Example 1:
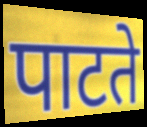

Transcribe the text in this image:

पाटते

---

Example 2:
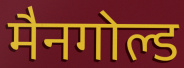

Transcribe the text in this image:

मैनगोल्ड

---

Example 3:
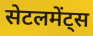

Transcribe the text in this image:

सेटलमेंट्स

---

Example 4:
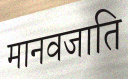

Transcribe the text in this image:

मानवजाति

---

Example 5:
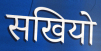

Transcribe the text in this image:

सखियो